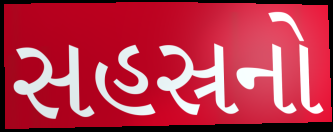
સહસ્રનો